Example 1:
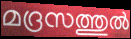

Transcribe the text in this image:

മദ്രസത്തുൽ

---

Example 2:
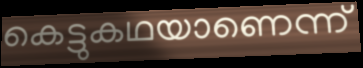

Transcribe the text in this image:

കെട്ടുകഥയാണെന്ന്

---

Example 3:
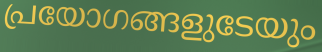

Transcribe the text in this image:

പ്രയോഗങ്ങളുടേയും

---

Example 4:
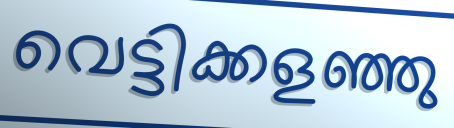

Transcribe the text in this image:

വെട്ടിക്കളഞ്ഞു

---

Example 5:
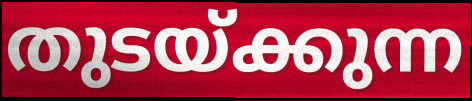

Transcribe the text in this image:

തുടയ്ക്കുന്ന